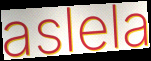
aslela